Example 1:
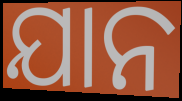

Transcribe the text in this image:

ଯାନ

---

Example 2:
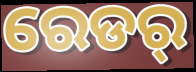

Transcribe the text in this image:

ରେଡର୍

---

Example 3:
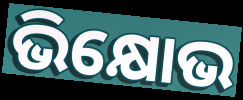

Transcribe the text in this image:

ଭିକ୍ଷୋଭ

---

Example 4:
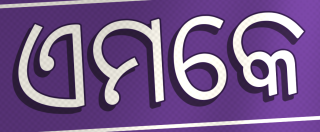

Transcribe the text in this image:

ଏମକେ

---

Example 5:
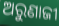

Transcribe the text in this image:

ଅରୁଣାଜୀ